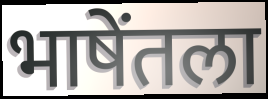
भाषेंतला